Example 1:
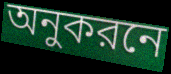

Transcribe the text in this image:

অনুকরনে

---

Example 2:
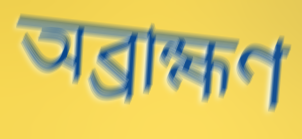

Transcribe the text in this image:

অব্রাহ্মণ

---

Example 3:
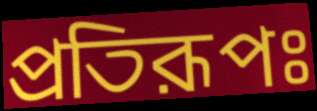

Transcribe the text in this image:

প্রতিরূপঃ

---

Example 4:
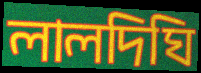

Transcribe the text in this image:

লালদিঘি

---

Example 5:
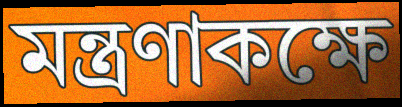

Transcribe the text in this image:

মন্ত্রণাকক্ষে